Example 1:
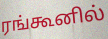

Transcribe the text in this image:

ரங்கூனில்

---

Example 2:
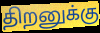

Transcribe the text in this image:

திறனுக்கு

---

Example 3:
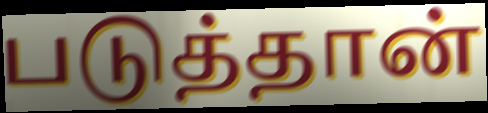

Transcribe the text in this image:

படுத்தான்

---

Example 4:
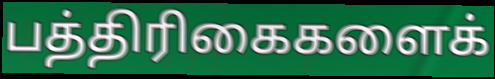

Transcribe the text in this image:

பத்திரிகைகளைக்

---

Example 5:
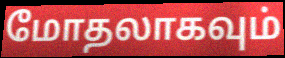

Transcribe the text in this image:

மோதலாகவும்